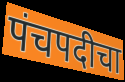
पंचपदीचा